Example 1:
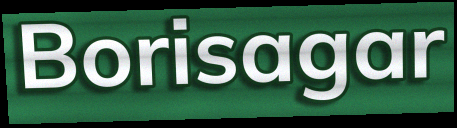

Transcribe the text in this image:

Borisagar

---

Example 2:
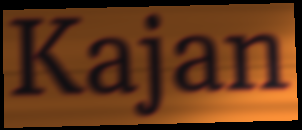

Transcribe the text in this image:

Kajan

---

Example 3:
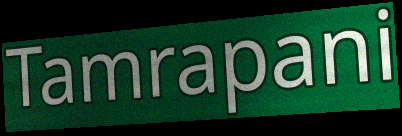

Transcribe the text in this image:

Tamrapani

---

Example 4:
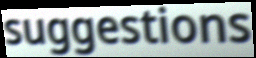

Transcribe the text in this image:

suggestions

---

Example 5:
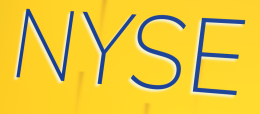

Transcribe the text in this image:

NYSE